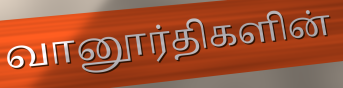
வானூர்திகளின்